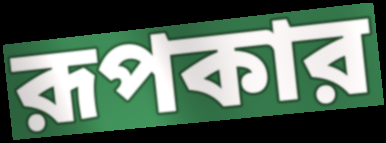
রূপকার